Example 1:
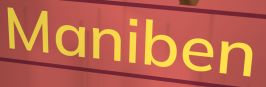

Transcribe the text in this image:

Maniben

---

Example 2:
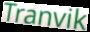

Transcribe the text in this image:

Tranvik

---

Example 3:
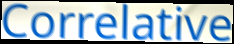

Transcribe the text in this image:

Correlative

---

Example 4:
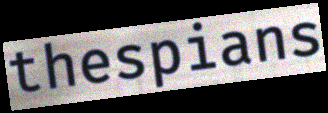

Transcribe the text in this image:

thespians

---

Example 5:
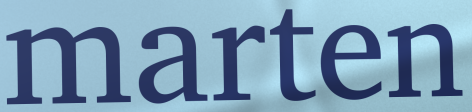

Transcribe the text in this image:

marten